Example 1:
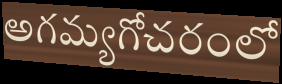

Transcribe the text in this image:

అగమ్యగోచరంలో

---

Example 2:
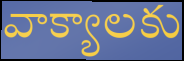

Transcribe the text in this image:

వాక్యాలకు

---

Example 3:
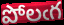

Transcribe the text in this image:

పోలఁగ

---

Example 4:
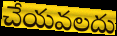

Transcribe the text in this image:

చేయవలదు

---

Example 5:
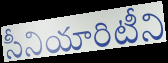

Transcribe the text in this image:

సీనియారిటీని